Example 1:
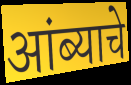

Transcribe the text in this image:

आंब्याचे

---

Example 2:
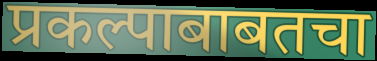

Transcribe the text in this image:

प्रकल्पाबाबतचा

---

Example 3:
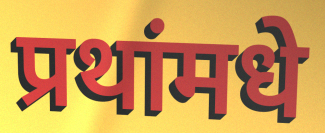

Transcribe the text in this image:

प्रथांमधे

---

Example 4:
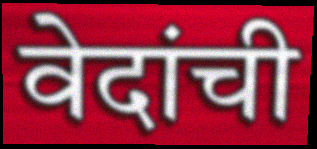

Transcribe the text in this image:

वेदांची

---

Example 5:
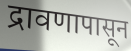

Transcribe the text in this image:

द्रावणापासून